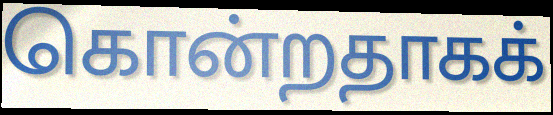
கொன்றதாகக்